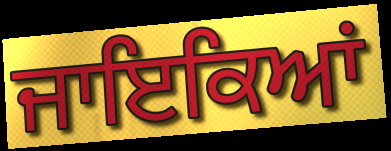
ਜਾਇਕਿਆਂ